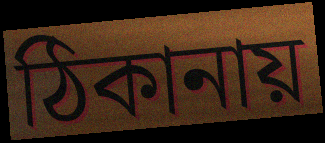
ঠিকানায়